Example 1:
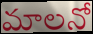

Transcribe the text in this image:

మాలనో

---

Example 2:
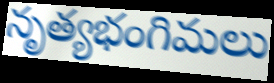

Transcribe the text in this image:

నృత్యభంగిమలు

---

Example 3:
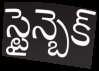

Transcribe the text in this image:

స్టైన్బెక్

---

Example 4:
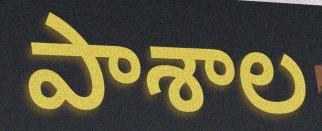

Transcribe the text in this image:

పాశాల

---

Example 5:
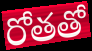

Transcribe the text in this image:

రోతతో